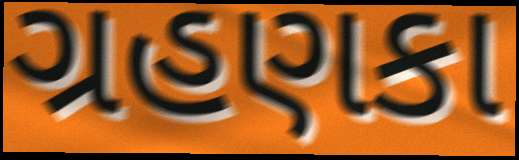
ગ્રહણકા